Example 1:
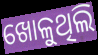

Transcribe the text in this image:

ଖୋଳୁଥିଲି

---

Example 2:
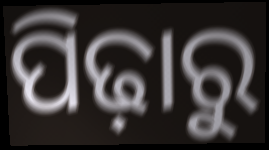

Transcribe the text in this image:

ପିଢ଼ାରୁ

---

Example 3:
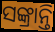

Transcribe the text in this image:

ସଙ୍କ୍ରାନ୍ତି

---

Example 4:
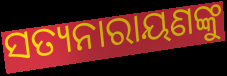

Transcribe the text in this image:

ସତ୍ୟନାରାୟଣଙ୍କୁ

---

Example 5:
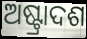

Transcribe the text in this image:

ଅଷ୍ଟ୍ରାଦଶ